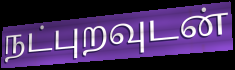
நட்புறவுடன்